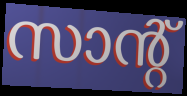
സാന്റ്